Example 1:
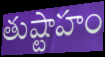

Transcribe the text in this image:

తుష్టాహం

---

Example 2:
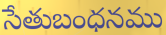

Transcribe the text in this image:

సేతుబంధనము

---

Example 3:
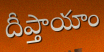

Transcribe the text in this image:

దీప్తాయాం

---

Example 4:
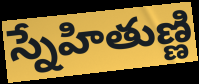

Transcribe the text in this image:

స్నేహితుణ్ణి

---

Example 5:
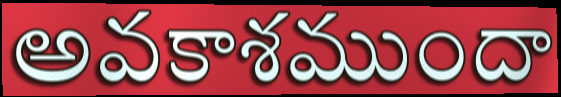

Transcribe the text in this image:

అవకాశముందా